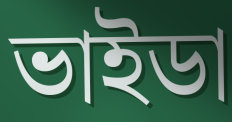
ভাইডা